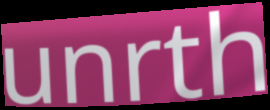
unrth